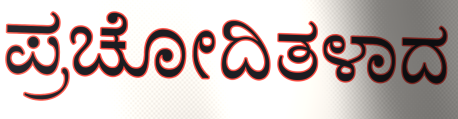
ಪ್ರಚೋದಿತಳಾದ